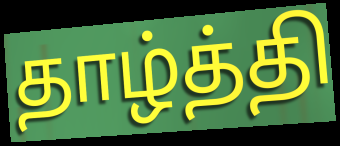
தாழ்த்தி